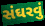
સંઘરવું